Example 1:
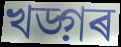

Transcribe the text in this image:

খড়্গৰ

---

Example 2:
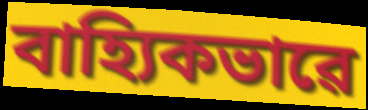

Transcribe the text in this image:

বাহ্যিকভাৱে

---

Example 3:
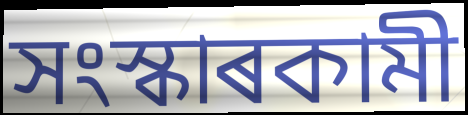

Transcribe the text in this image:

সংস্কাৰকামী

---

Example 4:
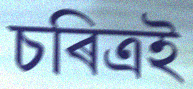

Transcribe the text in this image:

চৰিত্ৰই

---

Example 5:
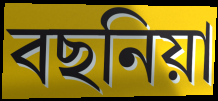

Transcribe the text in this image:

বছনিয়া